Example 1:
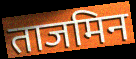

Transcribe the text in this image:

ताजमिन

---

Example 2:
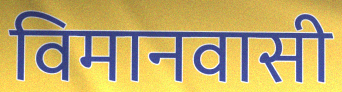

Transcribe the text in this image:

विमानवासी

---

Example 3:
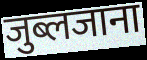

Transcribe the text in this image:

जुब्लजाना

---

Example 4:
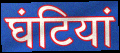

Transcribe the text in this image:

घंटियां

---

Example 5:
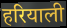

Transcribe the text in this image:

हरियाली